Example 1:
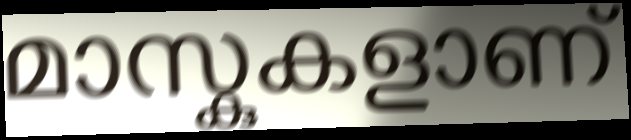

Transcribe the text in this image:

മാസ്കുകളാണ്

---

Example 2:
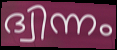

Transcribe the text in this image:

ദ്വിന്നം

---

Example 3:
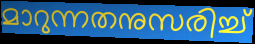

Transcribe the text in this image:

മാറുന്നതനുസരിച്ച്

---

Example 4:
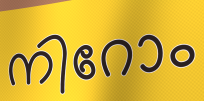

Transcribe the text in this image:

നിറോം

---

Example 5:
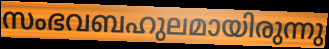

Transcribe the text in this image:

സംഭവബഹുലമായിരുന്നു